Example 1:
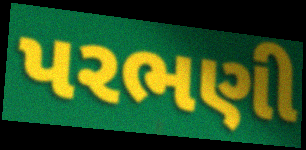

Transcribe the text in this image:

પરભણી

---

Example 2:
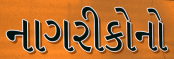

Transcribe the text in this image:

નાગરીકોનો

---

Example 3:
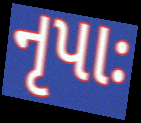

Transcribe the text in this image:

નૃપાઃ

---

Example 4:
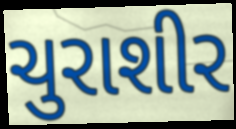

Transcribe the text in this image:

ચુરાશીર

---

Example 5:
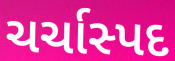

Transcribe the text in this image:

ચર્ચાસ્પદ